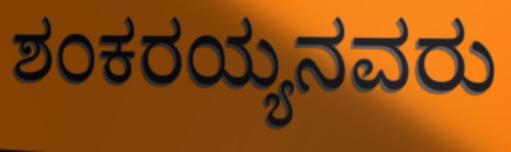
ಶಂಕರಯ್ಯನವರು